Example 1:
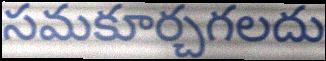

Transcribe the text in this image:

సమకూర్చగలదు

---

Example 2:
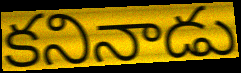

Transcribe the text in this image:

కనినాడు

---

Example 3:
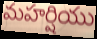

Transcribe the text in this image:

మహర్షియు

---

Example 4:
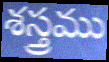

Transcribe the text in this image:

శస్త్రము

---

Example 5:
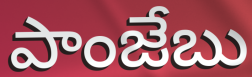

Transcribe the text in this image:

పాంజేబు